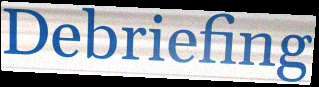
Debriefing